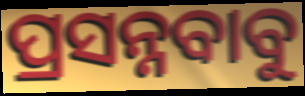
ପ୍ରସନ୍ନବାବୁ